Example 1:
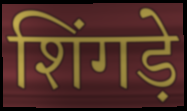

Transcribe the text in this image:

शिंगड़े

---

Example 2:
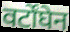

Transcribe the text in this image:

वर्टोंघेन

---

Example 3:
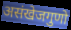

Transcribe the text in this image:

असंखेजगुणो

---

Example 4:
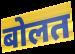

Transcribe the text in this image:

बोलत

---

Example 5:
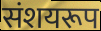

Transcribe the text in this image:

संशयरूप